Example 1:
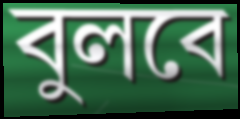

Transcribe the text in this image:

বুলবে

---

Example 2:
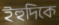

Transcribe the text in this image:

ইহুদিকে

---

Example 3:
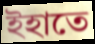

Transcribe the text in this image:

ইহাতে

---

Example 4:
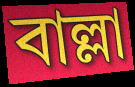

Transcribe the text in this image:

বাল্লা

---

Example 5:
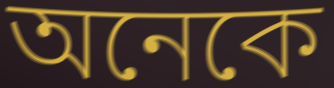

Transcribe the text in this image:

অনেকে